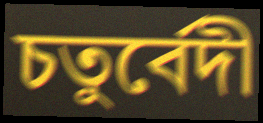
চতুৰ্বেদী